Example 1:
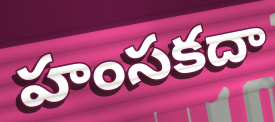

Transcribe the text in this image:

హంసకదా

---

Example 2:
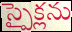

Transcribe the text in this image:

స్పైక్లను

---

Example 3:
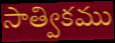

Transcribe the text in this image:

సాత్వికము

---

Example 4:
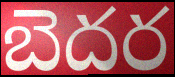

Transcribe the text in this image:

బెదర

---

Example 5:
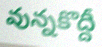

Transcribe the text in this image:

వున్నకొద్దీ